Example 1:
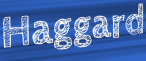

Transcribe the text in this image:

Haggard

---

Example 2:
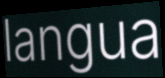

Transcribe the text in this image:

langua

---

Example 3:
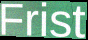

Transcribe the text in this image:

Frist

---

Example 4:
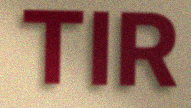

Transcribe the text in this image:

TIR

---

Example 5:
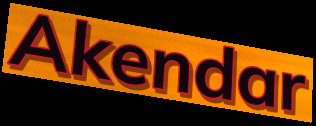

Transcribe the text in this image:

Akendar